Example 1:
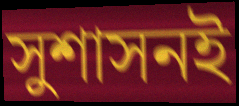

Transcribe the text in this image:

সুশাসনই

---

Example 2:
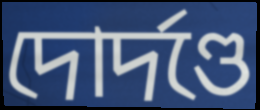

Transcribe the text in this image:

দোর্দণ্ডে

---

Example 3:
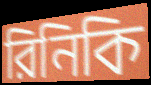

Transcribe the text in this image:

রিনিকি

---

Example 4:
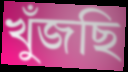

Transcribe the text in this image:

খুঁজছি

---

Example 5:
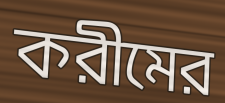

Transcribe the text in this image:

করীমের